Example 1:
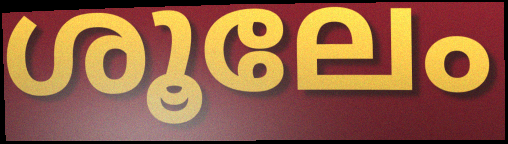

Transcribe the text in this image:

ശൂലേം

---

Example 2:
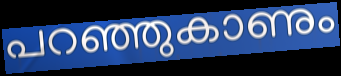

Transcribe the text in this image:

പറഞ്ഞുകാണും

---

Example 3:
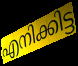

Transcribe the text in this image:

എനിക്കിട്ട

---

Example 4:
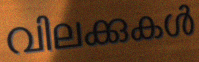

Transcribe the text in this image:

വിലക്കുകൾ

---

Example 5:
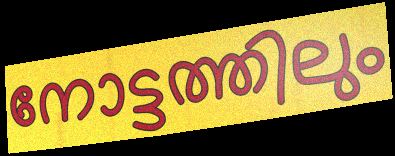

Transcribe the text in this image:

നോട്ടത്തിലും